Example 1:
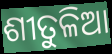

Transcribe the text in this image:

ଶୀତୁଳିଆ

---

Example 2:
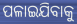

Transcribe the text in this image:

ପଳାଇଯିବାକୁ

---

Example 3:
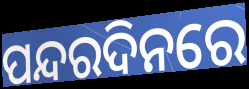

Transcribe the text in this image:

ପନ୍ଦରଦିନରେ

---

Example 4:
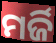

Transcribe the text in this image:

ମର୍ଜି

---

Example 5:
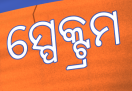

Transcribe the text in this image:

ସ୍ପେକ୍ଟ୍ରମ